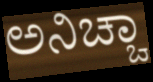
ಅನಿಚ್ಚಾ